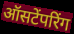
ऑसटेंपरिंग